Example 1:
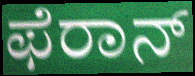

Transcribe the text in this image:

ಫೆರಾನ್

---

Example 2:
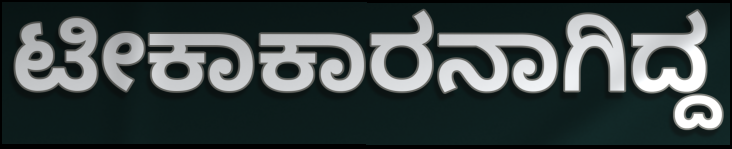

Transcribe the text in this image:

ಟೀಕಾಕಾರನಾಗಿದ್ದ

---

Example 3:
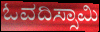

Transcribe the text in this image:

ಓವದಿಸ್ಸಾಮಿ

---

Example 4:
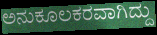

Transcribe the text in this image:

ಅನುಕೂಲಕರವಾಗಿದ್ದು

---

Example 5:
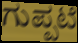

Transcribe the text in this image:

ಗುಪ್ಪಟೆ